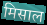
मिसाल